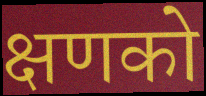
क्षणको